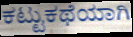
ಕಟ್ಟುಕಥೆಯಾಗಿ